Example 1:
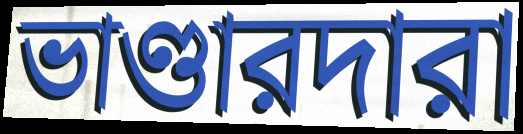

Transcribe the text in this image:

ভাণ্ডারদারা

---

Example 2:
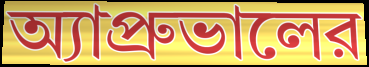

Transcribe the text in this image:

অ্যাপ্রুভালের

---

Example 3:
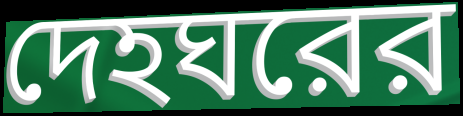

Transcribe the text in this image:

দেহঘরের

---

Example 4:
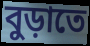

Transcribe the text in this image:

বুড়াতে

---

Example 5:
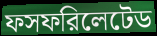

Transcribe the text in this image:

ফসফরিলেটেড